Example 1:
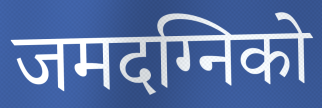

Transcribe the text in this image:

जमदग्निको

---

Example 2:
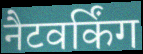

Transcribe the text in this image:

नैटवर्किंग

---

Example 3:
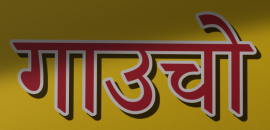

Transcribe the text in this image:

गाउचो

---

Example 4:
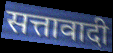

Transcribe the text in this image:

सत्तावादी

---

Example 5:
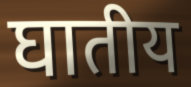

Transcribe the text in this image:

घातीय